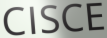
CISCE